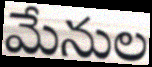
మేనుల